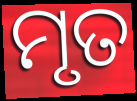
ମୃତ